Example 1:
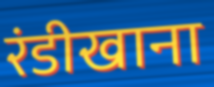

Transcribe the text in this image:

रंडीखाना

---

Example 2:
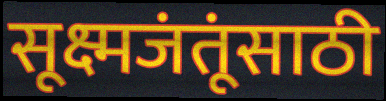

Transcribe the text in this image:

सूक्ष्मजंतूंसाठी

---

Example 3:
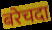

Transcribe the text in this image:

बरेचदा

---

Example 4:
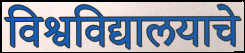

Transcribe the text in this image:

विश्वविद्यालयाचे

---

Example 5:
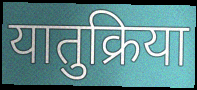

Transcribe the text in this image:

यातुक्रिया